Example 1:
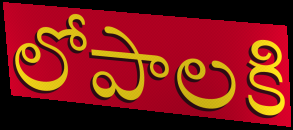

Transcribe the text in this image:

లోపాలకి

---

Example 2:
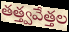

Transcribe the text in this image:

తత్త్వవేత్తల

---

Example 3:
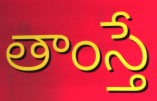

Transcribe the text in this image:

తాంస్తే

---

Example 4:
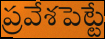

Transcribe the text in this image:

ప్రవేశపెట్టే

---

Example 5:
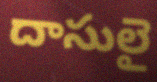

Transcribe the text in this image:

దాసులై